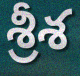
శ్రీశ